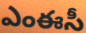
ఎంఈసీ